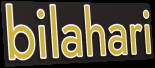
bilahari